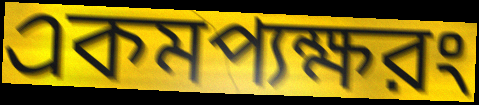
একমপ্যক্ষরং